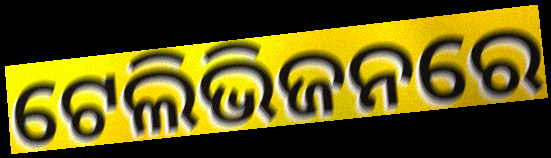
ଟେଲିଭିଜନରେ